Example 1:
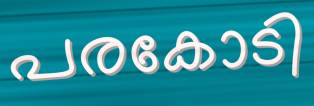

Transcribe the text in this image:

പരകോടി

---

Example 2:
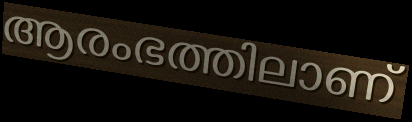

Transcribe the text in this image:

ആരംഭത്തിലാണ്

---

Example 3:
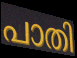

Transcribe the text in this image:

പാതി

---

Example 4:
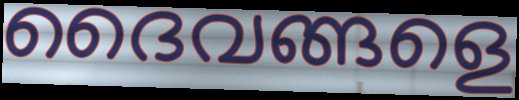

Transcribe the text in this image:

ദൈവങ്ങളെ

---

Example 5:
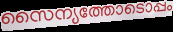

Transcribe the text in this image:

സൈന്യത്തോടൊപ്പം